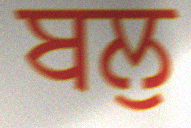
ਬਲੁ